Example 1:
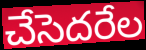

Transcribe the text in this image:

చేసెదరేల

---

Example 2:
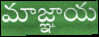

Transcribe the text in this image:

మాజ్ఞాయ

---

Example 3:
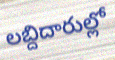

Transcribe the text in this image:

లబ్దిదారుల్లో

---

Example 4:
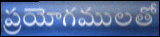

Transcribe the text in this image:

ప్రయోగములతో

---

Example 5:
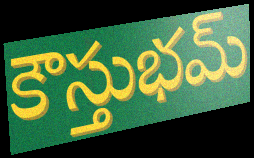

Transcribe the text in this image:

కౌస్తుభమ్